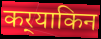
कर्याकिन